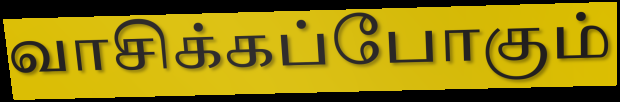
வாசிக்கப்போகும்